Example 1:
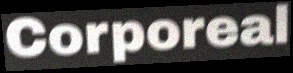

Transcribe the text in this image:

Corporeal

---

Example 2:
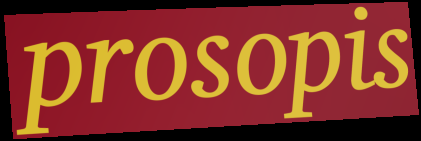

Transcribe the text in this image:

prosopis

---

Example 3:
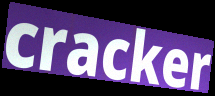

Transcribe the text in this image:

cracker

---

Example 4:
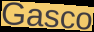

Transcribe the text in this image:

Gasco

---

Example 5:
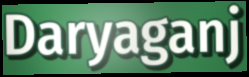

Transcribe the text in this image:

Daryaganj